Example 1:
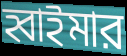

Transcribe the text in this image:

হ্বাইমার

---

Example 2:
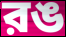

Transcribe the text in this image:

রঙ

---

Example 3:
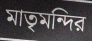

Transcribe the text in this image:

মাতৃমন্দির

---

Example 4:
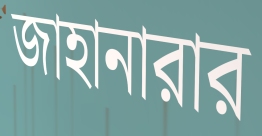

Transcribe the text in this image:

জাহানারার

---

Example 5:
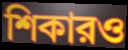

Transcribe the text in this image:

শিকারও